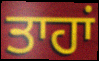
ਤਾਹਾਂ